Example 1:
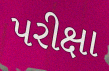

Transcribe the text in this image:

પરીક્ષા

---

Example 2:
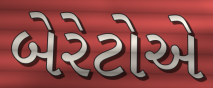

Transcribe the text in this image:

બેરેટોએ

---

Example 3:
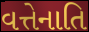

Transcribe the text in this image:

વત્તેનાતિ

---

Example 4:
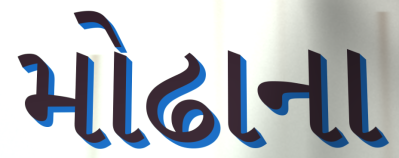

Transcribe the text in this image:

મોઢાના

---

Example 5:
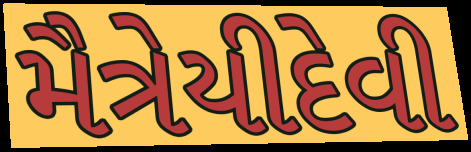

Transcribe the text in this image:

મૈત્રેયીદેવી